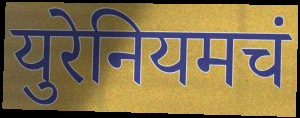
युरेनियमचं